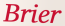
Brier